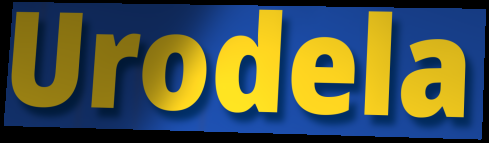
Urodela